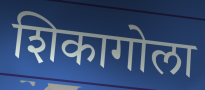
शिकागोला